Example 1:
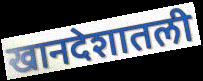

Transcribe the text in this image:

खानदेशातली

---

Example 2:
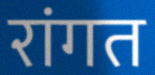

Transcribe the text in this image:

रांगत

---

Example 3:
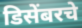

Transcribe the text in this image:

डिसेंबरचे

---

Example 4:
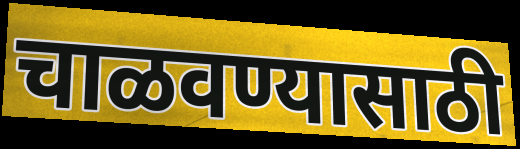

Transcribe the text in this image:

चाळवण्यासाठी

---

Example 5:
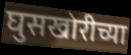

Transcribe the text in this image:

घुसखोरीच्या